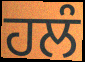
ਹਲੰ